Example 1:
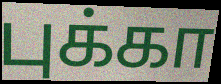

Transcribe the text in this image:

புக்கா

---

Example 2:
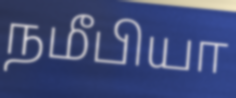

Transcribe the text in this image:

நமீபியா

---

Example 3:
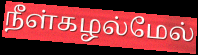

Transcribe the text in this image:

நீள்கழல்மேல்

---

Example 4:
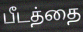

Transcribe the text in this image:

பீடத்தை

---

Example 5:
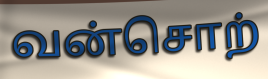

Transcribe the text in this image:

வன்சொற்